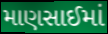
માણસાઈમાં